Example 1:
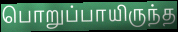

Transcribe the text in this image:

பொறுப்பாயிருந்த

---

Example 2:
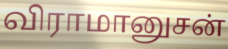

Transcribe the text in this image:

விராமானுசன்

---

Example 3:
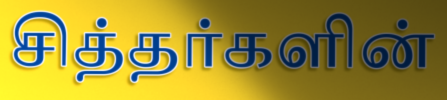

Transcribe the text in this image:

சித்தர்களின்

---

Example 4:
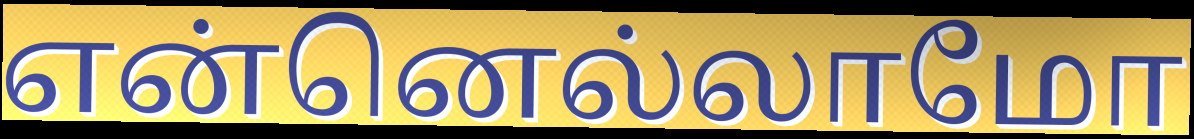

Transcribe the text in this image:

என்னெல்லாமோ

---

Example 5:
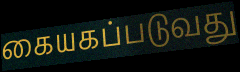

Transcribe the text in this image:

கையகப்படுவது